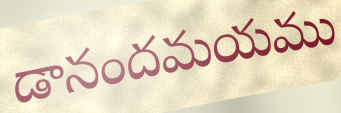
డానందమయము